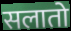
सलातो